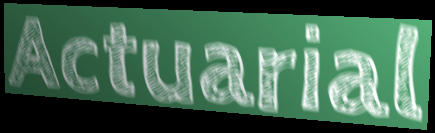
Actuarial